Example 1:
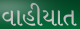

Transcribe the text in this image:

વાહીયાત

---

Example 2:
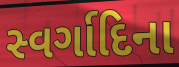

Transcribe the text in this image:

સ્વર્ગાદિના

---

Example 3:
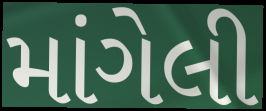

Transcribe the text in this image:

માંગેલી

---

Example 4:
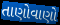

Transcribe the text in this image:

તાણોવાણો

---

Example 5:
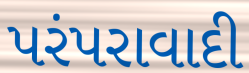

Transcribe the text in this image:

પરંપરાવાદી